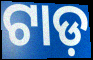
ଟାଡ଼